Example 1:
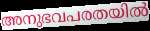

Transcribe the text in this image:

അനുഭവപരതയിൽ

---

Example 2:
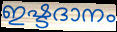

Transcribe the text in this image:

ഇഷ്ടദാനം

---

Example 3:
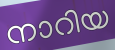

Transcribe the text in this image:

നാറിയ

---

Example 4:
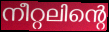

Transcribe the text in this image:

നീറ്റലിന്റെ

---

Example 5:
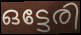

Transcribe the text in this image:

ഒട്ടേരി